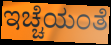
ಇಚ್ಚೆಯಂತೆ